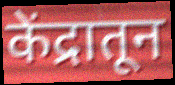
केंद्रातून